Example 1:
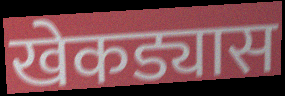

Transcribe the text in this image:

खेकड्यास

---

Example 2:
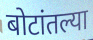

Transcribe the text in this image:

बोटांतल्या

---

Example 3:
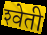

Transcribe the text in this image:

श्वेती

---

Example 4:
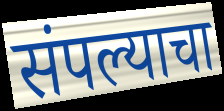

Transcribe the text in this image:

संपल्याचा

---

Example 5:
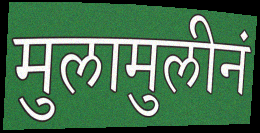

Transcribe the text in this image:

मुलामुलीनं